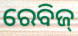
ରେବିଜ୍